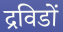
द्रविडों